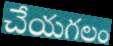
చేయగలం